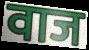
वाज